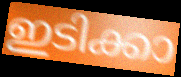
ഇടിക്കാ